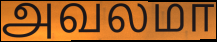
அவலமா